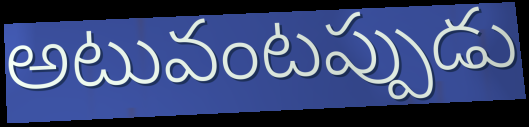
అటువంటప్పుడు